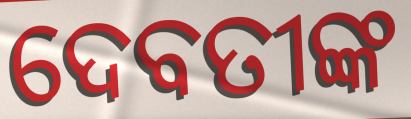
ଦେବତୀଙ୍କ